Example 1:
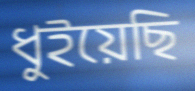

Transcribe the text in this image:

ধুইয়েছি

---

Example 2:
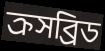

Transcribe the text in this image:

ক্রসব্রিড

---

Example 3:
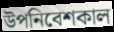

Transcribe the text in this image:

উপনিবেশকাল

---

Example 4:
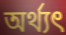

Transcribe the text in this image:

অর্থ্যৎ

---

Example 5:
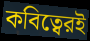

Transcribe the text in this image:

কবিত্বেরই